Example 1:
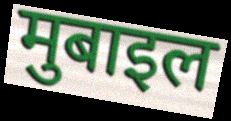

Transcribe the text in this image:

मुबाइल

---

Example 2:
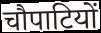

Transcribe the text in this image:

चौपाटियों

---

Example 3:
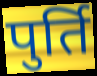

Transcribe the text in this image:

पुर्ति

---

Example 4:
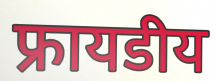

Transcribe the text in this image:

फ्रायडीय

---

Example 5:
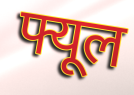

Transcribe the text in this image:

फ्यूल